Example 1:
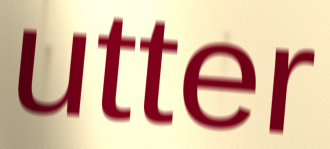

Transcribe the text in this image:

utter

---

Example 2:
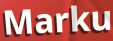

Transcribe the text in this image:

Marku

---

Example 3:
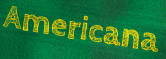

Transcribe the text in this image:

Americana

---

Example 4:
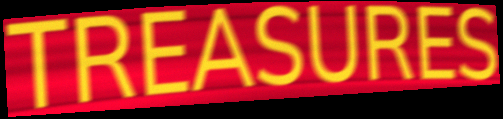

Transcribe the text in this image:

TREASURES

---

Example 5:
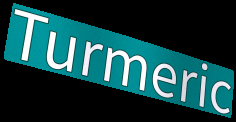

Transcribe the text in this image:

Turmeric